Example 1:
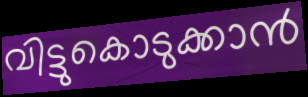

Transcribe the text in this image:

വിട്ടുകൊടുക്കാൻ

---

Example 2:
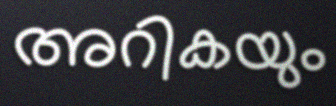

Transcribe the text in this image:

അറികയും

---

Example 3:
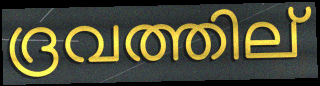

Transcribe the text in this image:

ദ്രവത്തില്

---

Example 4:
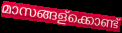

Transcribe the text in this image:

മാസങ്ങള്ക്കൊണ്ട്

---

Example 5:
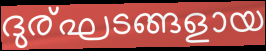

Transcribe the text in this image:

ദുര്ഘടങ്ങളായ